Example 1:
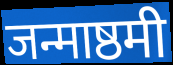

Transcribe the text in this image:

जन्माष्ठमी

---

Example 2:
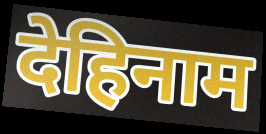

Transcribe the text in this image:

देहिनाम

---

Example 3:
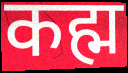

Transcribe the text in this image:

कह्म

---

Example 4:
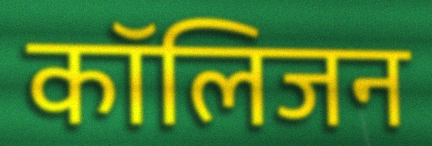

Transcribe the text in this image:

कॉलिजन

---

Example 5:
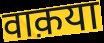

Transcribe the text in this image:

वाक़या